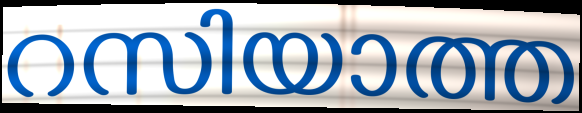
റസിയാത്ത